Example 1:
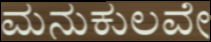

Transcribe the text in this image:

ಮನುಕುಲವೇ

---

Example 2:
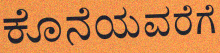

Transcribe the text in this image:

ಕೊನೆಯವರೆಗೆ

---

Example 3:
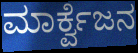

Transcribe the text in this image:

ಮಾರ್ಕ್ವೆಜನ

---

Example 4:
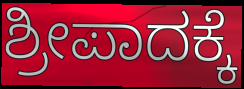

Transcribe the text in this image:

ಶ್ರೀಪಾದಕ್ಕೆ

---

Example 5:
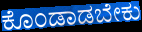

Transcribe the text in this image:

ಕೊಂಡಾಡಬೇಕು